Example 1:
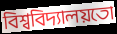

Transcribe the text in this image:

বিশ্ববিদ্যালয়তো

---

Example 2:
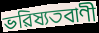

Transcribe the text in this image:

ভৱিষ্যতবাণী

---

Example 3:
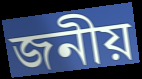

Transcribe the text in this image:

জনীয়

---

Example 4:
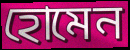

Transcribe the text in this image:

হোমেন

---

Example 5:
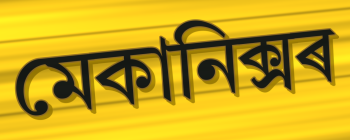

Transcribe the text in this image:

মেকানিক্সৰ